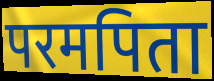
परमपिता